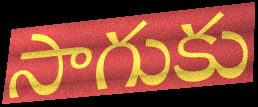
సాగుకు